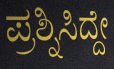
ಪ್ರಶ್ನಿಸಿದ್ದೇ